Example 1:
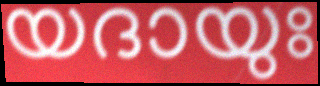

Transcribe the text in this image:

യദായുഃ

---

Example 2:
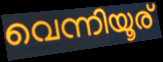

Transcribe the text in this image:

വെന്നിയൂര്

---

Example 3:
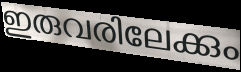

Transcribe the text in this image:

ഇരുവരിലേക്കും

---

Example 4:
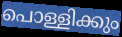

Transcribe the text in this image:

പൊള്ളിക്കും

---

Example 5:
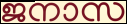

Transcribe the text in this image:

ജനാസ